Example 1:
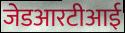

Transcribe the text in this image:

जेडआरटीआई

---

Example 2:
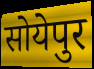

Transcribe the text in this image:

सोयेपुर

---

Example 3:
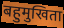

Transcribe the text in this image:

बहुमुखिता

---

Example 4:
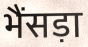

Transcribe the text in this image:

भैंसड़ा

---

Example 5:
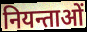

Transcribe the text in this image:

नियन्ताओं